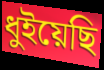
ধুইয়েছি